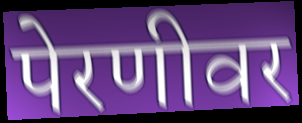
पेरणीवर